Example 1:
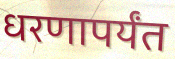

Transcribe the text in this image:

धरणापर्यंत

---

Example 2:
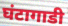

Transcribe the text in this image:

घंटागाडी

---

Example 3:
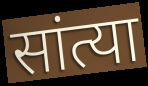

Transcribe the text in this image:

सांत्या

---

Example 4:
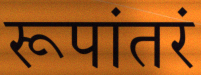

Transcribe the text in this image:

रूपांतरं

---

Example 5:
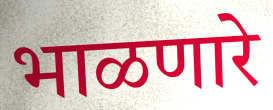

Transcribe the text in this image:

भाळणारे